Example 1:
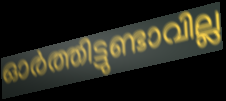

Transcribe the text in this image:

ഓർത്തിട്ടുണ്ടാവില്ല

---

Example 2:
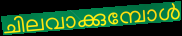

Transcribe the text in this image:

ചിലവാക്കുമ്പോൾ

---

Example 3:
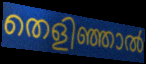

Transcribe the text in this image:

തെളിഞ്ഞാൽ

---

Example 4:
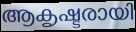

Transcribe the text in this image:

ആകൃഷ്ടരായി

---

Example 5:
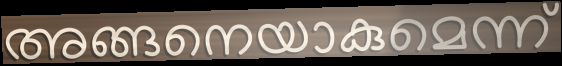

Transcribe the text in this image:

അങ്ങനെയാകുമെന്ന്